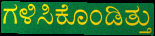
ಗಳಿಸಿಕೊಂಡಿತ್ತು